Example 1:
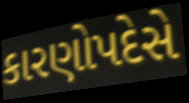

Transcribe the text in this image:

કારણોપદેસે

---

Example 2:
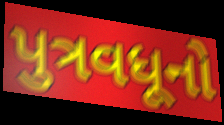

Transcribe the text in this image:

પુત્રવધૂનો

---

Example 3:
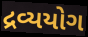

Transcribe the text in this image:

દ્રવ્યયોગ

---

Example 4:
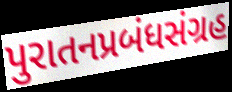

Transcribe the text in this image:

પુરાતનપ્રબંધસંગ્રહ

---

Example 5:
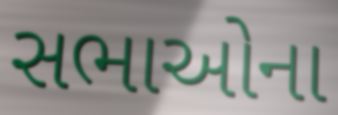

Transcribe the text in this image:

સભાઓના